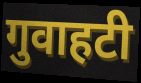
गुवाहटी